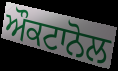
ਔਕਟਾਨੋਲ